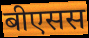
बीएसस